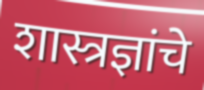
शास्त्रज्ञांचे